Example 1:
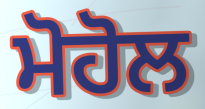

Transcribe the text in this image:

ਮੋਹੋਲ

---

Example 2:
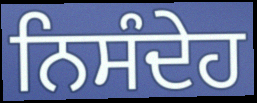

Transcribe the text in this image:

ਨਿਸੰਦੇਹ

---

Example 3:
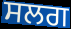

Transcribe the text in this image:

ਸਲਗ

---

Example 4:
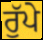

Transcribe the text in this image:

ਰੁੱਪੇ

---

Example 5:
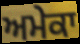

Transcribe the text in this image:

ਅਮੇਕਾ